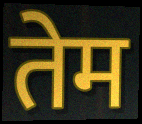
तेम